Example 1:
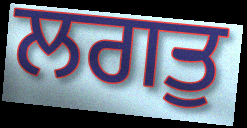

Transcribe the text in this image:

ਲਗਤੁ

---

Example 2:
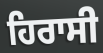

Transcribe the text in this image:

ਹਿਰਾਸੀ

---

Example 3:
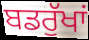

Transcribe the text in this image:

ਬਡਰੁੱਖਾਂ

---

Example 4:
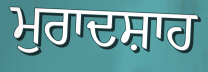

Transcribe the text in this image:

ਮੁਰਾਦਸ਼ਾਹ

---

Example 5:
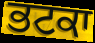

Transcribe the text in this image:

ਭਟਕਾ